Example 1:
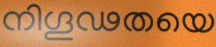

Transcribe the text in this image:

നിഗൂഢതയെ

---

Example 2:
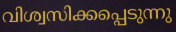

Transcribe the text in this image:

വിശ്വസിക്കപ്പെടുന്നു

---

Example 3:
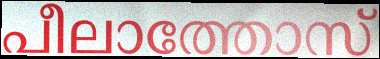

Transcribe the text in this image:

പീലാത്തോസ്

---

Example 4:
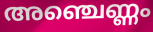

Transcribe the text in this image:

അഞ്ചെണ്ണം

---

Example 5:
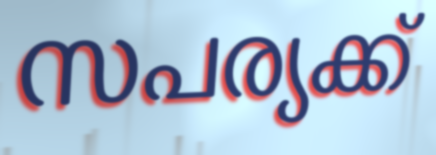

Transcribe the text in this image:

സപര്യക്ക്